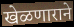
खेळणाराने